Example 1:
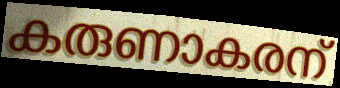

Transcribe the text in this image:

കരുണാകരന്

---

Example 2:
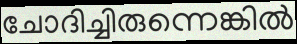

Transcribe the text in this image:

ചോദിച്ചിരുന്നെങ്കിൽ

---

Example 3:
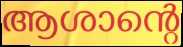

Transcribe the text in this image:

ആശാന്റെ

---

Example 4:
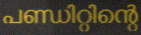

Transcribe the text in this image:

പണ്ഡിറ്റിന്റെ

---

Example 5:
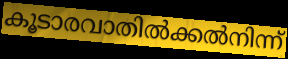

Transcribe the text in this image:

കൂടാരവാതിൽക്കൽനിന്ന്